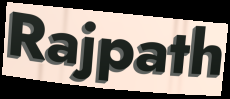
Rajpath